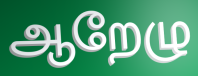
ஆறேழு